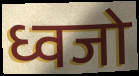
ध्वजो